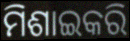
ମିଶାଇକରି